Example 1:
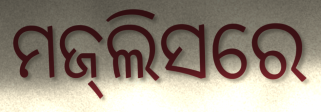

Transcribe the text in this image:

ମଜ୍‌ଲିସରେ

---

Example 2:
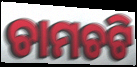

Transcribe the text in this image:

ଚାମଚଟି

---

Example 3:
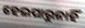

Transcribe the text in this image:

ହେଇପାରୁନାହିଁ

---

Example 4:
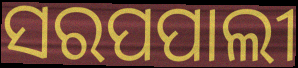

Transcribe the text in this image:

ସରପପାଲୀ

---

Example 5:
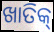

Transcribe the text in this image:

ଖାତିକ୍